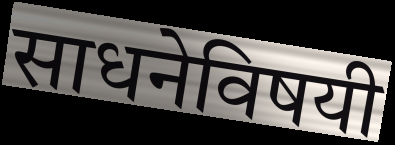
साधनेविषयी